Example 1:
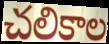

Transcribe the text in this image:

చలికాల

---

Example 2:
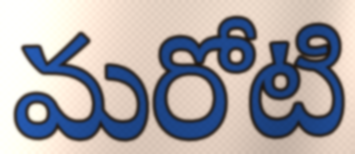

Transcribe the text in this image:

మరోటి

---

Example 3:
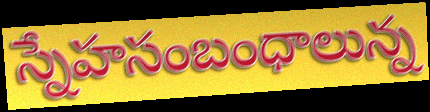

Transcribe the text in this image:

స్నేహసంబంధాలున్న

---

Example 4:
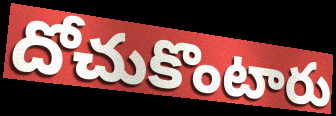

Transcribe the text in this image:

దోచుకొంటారు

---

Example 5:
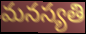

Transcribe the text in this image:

మనస్యతి